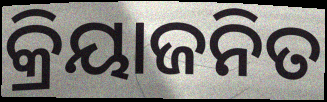
କ୍ରିୟାଜନିତ